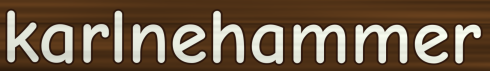
karlnehammer